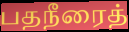
பதநீரைத்